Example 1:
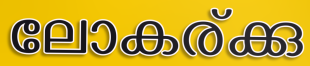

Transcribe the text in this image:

ലോകര്ക്കു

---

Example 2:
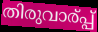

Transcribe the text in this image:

തിരുവാര്പ്പ്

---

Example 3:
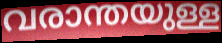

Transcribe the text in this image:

വരാന്തയുള്ള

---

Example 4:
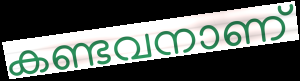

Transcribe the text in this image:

കണ്ടവനാണ്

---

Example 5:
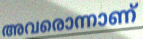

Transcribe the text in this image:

അവരൊന്നാണ്